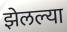
झेलल्या